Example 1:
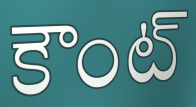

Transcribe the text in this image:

కౌంట్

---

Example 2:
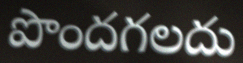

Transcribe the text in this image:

పొందగలదు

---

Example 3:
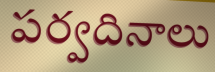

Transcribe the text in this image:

పర్వదినాలు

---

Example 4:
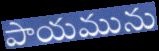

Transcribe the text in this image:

పాయమును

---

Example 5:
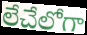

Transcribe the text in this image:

లేచేలోగా